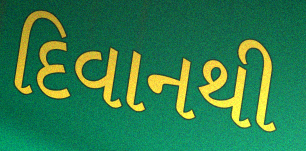
દિવાનથી